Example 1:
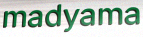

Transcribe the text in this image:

madyama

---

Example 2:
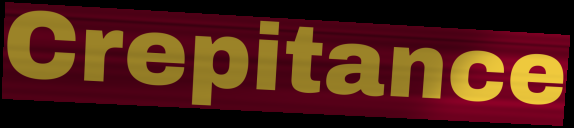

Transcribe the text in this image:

Crepitance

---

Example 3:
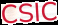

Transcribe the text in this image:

CSIC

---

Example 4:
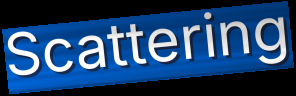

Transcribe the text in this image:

Scattering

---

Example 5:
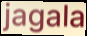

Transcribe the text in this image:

jagala